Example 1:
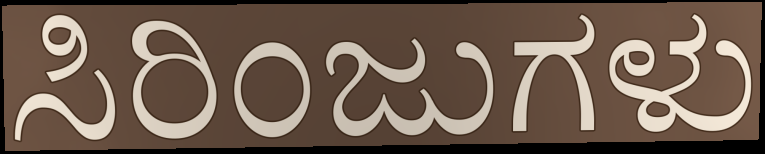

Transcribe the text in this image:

ಸಿರಿಂಜುಗಳು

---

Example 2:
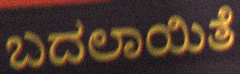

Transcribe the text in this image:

ಬದಲಾಯಿತೆ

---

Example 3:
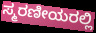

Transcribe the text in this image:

ಸ್ಮರಣೀಯರಲ್ಲಿ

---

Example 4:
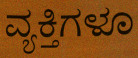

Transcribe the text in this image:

ವ್ಯಕ್ತಿಗಳೂ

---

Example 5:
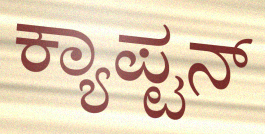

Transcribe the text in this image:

ಕ್ಯಾಪ್ಟನ್